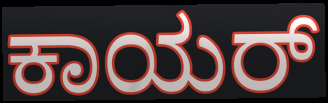
ಕಾಯರ್